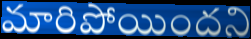
మారిపోయిందని